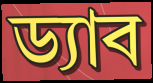
ড্যাব